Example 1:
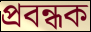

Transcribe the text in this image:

প্ৰবন্ধক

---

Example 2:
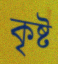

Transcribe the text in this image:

কৃষ্ট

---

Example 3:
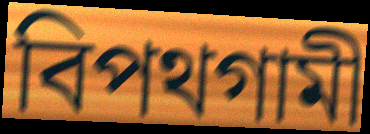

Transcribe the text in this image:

বিপথগামী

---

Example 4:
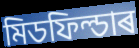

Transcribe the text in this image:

মিডফিল্ডাৰ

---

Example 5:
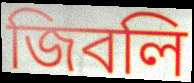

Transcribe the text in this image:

জিবলি